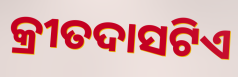
କ୍ରୀତଦାସଟିଏ